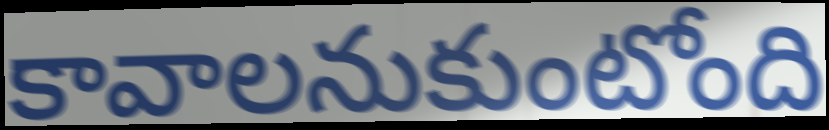
కావాలనుకుంటోంది